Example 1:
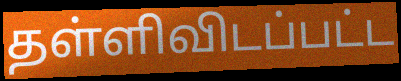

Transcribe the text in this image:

தள்ளிவிடப்பட்ட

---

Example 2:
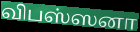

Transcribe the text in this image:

விபஸ்ஸனா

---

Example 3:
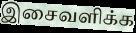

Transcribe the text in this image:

இசைவளிக்க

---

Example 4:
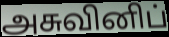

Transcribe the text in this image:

அசுவினிப்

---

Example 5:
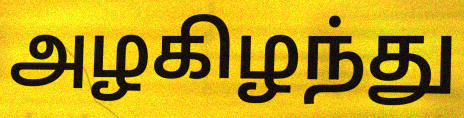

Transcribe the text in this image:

அழகிழந்து